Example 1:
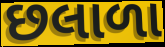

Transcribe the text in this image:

છલાળા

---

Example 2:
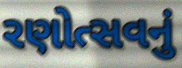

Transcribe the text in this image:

રણોત્સવનું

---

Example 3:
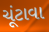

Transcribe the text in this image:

ચૂંટાવા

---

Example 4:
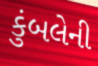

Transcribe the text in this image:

કુંબલેની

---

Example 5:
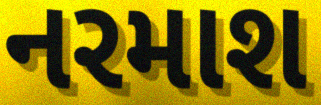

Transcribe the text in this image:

નરમાશ